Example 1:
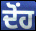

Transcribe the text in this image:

ਦੋਂਹ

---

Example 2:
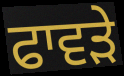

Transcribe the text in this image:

ਫਾਵੜੇ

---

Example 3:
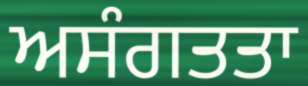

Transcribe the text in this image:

ਅਸੰਗਤਤਾ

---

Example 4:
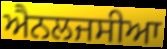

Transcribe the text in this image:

ਐਨਲਜਸੀਆ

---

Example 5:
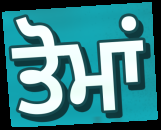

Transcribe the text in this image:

ਤੋਮਾਂ